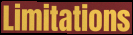
Limitations